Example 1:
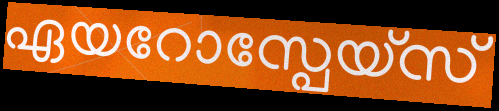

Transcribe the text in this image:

ഏയറോസ്പേയ്സ്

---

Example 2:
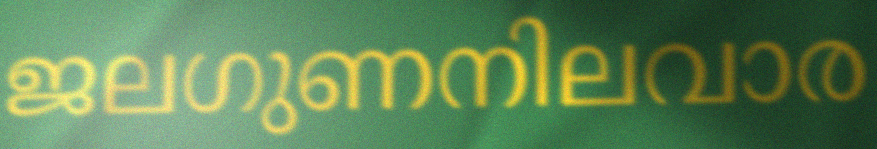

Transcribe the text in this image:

ജലഗുണനിലവാര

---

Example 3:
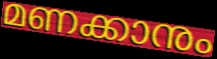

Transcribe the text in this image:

മണക്കാനും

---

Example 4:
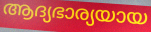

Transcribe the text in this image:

ആദ്യഭാര്യയായ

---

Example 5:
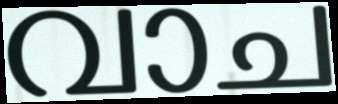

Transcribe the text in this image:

വാച